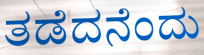
ತಡೆದನೆಂದು